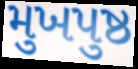
મુખપુષ્ઠ